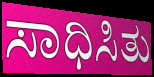
ಸಾಧಿಸಿತು